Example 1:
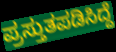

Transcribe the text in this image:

ಪ್ರಸ್ತುತಪಡಿಸಿದ್ದೆ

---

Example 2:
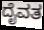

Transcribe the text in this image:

ದೈವತ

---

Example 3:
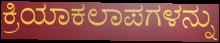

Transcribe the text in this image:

ಕ್ರಿಯಾಕಲಾಪಗಳನ್ನು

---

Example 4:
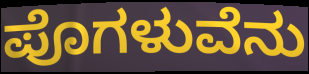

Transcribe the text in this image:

ಪೊಗಳುವೆನು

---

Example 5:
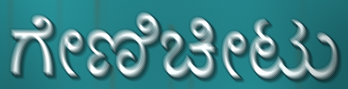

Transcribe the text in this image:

ಗೇಣಿಚೀಟು